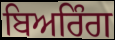
ਬਿਅਰਿੰਗ